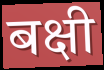
बक्षी